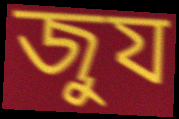
জুয